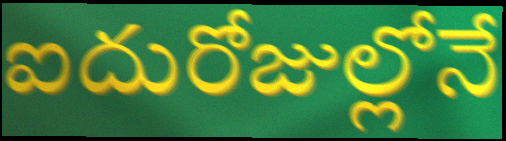
ఐదురోజుల్లోనే